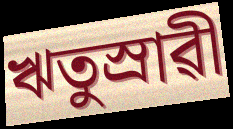
ঋতুস্ৰাৱী